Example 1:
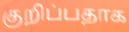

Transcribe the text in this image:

குறிப்பதாக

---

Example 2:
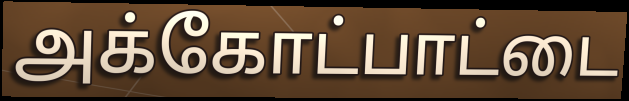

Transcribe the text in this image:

அக்கோட்பாட்டை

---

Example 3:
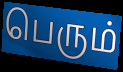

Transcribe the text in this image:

பெரும்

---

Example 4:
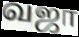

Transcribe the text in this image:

வஜா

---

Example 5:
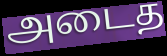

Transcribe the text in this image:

அடைத